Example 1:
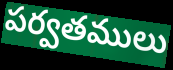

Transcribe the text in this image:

పర్వతములు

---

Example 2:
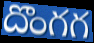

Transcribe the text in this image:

దొంగగ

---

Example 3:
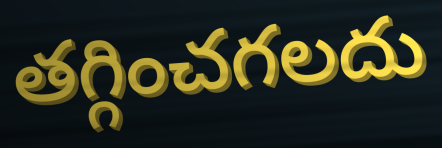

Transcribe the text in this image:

తగ్గించగలదు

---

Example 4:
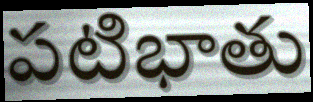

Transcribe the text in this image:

పటిభాతు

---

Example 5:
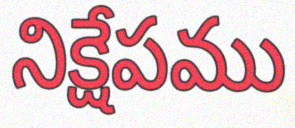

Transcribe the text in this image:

నిక్షేపము